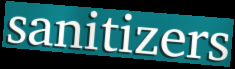
sanitizers